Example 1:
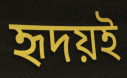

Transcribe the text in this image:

হৃদয়ই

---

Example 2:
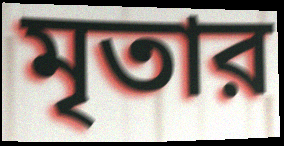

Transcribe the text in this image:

মৃতার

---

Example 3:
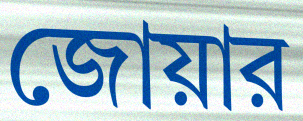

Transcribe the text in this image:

জোয়ার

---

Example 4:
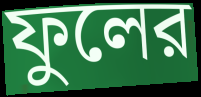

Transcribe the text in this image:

ফুলের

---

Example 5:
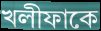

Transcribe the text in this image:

খলীফাকে